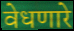
वेधणारे